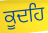
ਕੂਦਹਿ